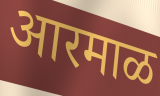
आरमाळ